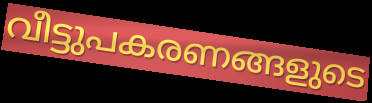
വീട്ടുപകരണങ്ങളുടെ